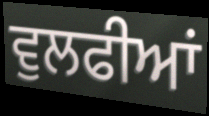
ਵੁਲਫੀਆਂ